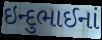
ઇન્દુભાઈનાં